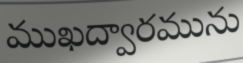
ముఖద్వారమును